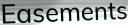
Easements